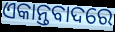
ଏକାନ୍ତବାଦରେ